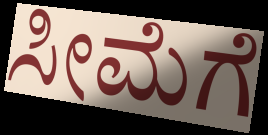
ಸೀಮೆಗೆ